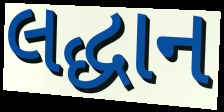
લદ્ધાન